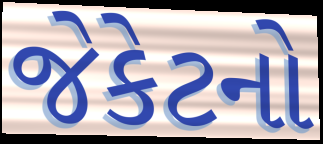
જેકેટનો